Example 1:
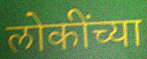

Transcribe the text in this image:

लोकींच्या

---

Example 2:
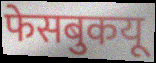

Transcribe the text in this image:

फेसबुकयू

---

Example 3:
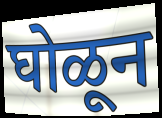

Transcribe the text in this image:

घोळून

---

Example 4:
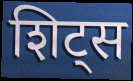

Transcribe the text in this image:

शिट्स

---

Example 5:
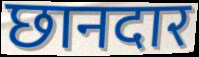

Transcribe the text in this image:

छानदार